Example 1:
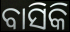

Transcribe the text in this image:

ବାସିକି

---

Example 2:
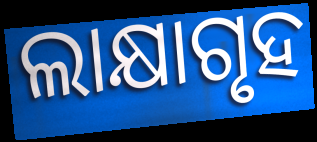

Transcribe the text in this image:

ଲାକ୍ଷାଗୃହ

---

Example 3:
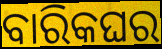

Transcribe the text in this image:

ବାରିକଘର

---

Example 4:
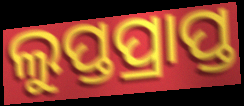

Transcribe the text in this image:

ଲୁପ୍ତପ୍ରାପ୍ତ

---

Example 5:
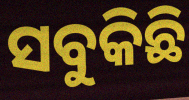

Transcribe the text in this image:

ସବୁକିଛି